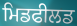
ਮਿਡਫੀਲਡ